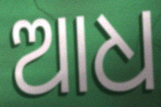
ଆଧ